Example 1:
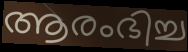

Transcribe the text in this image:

ആരംഭിച്ച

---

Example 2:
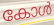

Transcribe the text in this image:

കോൾ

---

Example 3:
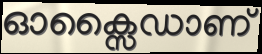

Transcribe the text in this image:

ഓക്സൈഡാണ്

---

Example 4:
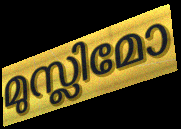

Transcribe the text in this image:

മുസ്ലിമോ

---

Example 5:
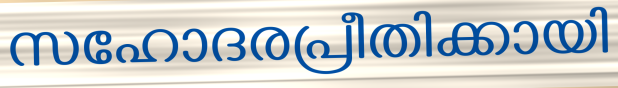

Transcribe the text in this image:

സഹോദരപ്രീതിക്കായി